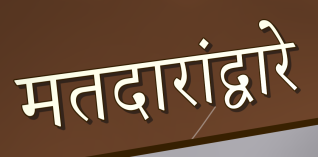
मतदारांद्वारे